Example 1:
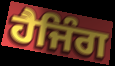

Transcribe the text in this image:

ਹੈਜਿੰਗ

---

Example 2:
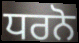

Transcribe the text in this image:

ਧਰਨੋ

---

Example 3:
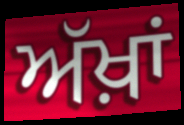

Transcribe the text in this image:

ਅੱਖ਼ਾਂ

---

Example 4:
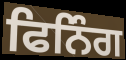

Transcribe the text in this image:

ਫਿਨਿੰਗ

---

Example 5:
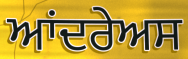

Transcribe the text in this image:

ਆਂਦਰੇਅਸ